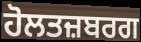
ਹੋਲਤਜ਼ਬਰਗ